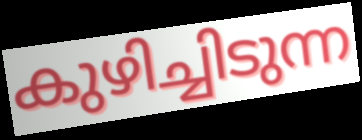
കുഴിച്ചിടുന്ന